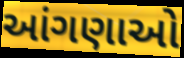
આંગણાઓ